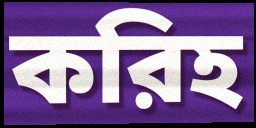
করিহ